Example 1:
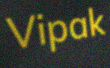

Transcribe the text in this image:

Vipak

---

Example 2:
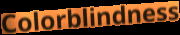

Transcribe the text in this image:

Colorblindness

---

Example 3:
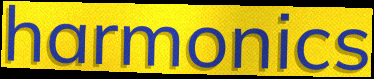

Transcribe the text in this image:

harmonics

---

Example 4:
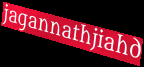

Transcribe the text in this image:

jagannathjiahd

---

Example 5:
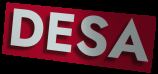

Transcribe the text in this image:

DESA